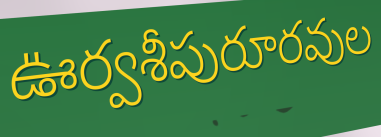
ఊర్వశీపురూరవుల